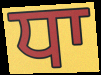
ਧਾ